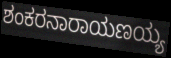
ಶಂಕರನಾರಾಯಣಯ್ಯ